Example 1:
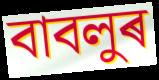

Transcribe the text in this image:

বাবলুৰ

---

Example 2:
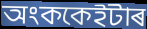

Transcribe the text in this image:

অংককেইটাৰ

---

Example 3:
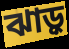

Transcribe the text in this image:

ঝাড়ু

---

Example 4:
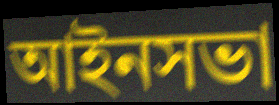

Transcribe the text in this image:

আইনসভা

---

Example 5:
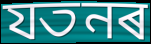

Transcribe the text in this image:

যতনৰ